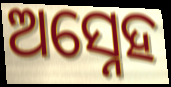
ଅସ୍ନେହ